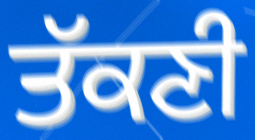
ਤੱਕਣੀ